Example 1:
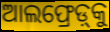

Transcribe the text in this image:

ଆଲଫ୍ରେଡ଼୍‍କୁ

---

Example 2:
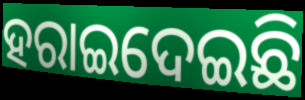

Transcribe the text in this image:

ହରାଇଦେଇଛି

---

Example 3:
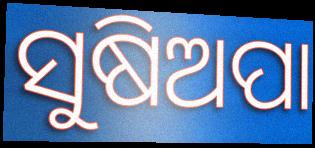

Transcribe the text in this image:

ସୁଷିଅପା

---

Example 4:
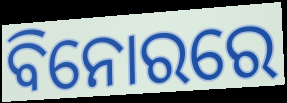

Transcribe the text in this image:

ବିନୋରରେ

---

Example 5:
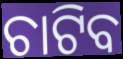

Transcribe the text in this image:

ଚାଟିବ